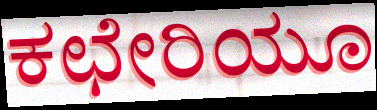
ಕಛೇರಿಯೂ